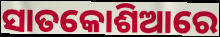
ସାତକୋଶିଆରେ